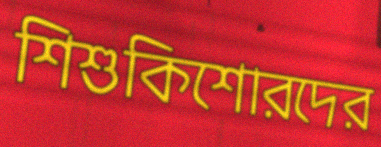
শিশুকিশোরদের